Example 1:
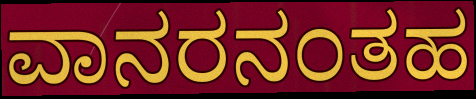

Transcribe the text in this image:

ವಾನರನಂತಹ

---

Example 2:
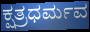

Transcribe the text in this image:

ಕ್ಷತ್ರಧರ್ಮವ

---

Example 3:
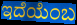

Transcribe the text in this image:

ಇದೆಯೆಂಬ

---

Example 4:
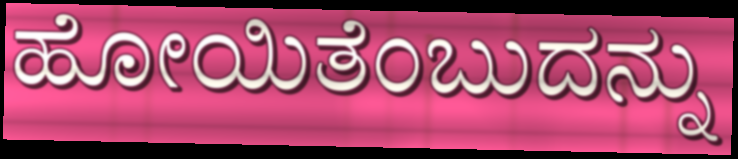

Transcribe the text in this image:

ಹೋಯಿತೆಂಬುದನ್ನು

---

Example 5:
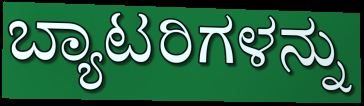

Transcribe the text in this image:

ಬ್ಯಾಟರಿಗಳನ್ನು